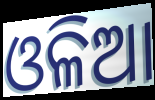
ଓଳିଆ